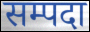
सम्पदा